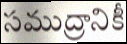
సముద్రానికీ